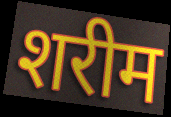
शरीम